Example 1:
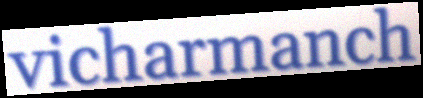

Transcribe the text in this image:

vicharmanch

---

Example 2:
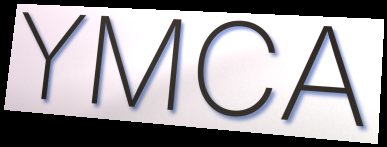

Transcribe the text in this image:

YMCA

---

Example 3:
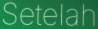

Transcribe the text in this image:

Setelah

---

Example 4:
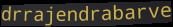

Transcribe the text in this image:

drrajendrabarve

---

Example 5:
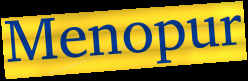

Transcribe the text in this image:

Menopur